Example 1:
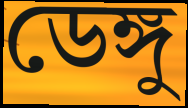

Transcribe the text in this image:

ডেঙ্গু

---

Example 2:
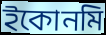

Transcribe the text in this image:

ইকোনমি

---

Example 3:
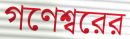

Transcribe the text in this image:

গণেশ্বরের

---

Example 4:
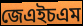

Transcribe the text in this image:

জেএইচএম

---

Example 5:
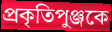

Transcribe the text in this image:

প্রকৃতিপুঞ্জকে